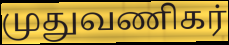
முதுவணிகர்